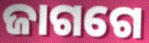
ଜାଗଗେ